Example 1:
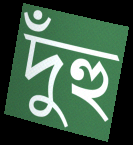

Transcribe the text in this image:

দুঁহু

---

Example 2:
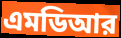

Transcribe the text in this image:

এমডিআর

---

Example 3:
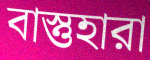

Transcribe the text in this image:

বাস্তুহারা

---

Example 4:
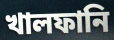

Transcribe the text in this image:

খালফানি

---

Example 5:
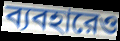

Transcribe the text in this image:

ব্যবহারেও